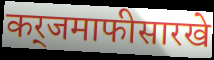
कर्जमाफीसारखे